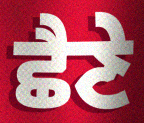
ਛੈਣੇ